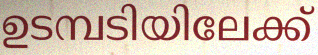
ഉടമ്പടിയിലേക്ക്